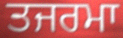
ਤਜਰਮਾ